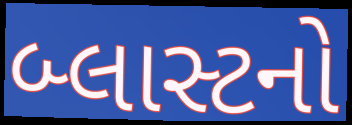
બ્લાસ્ટનો